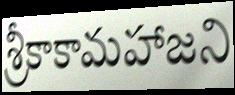
శ్రీకాకామహాజని